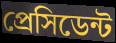
প্রেসিডেন্ট